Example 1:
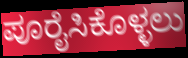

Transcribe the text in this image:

ಪೂರೈಸಿಕೊಳ್ಳಲು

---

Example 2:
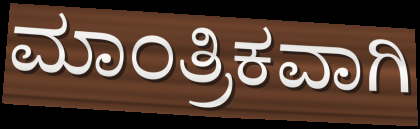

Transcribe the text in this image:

ಮಾಂತ್ರಿಕವಾಗಿ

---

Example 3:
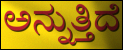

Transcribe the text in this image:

ಅನ್ನುತ್ತಿದೆ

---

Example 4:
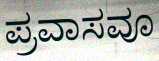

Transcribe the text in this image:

ಪ್ರವಾಸವೂ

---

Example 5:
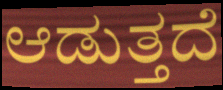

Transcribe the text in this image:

ಆಡುತ್ತದೆ